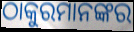
ଠାକୁରମାନଙ୍କର